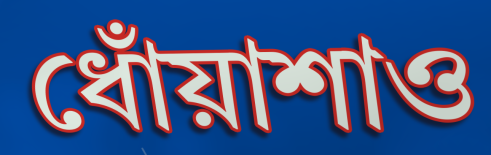
ধোঁয়াশাও